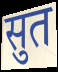
सुत